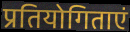
प्रतियोगिताएं